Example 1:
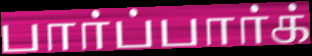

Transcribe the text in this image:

பார்ப்பார்க்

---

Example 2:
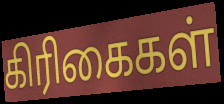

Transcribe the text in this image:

கிரிகைகள்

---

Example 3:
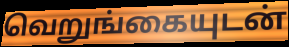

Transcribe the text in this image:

வெறுங்கையுடன்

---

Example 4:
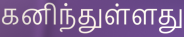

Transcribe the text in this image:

கனிந்துள்ளது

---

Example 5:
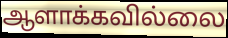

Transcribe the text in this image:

ஆளாக்கவில்லை